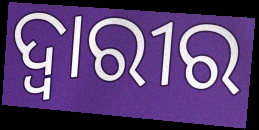
ଦ୍ୱାରୀର